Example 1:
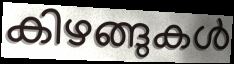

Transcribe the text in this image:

കിഴങ്ങുകൾ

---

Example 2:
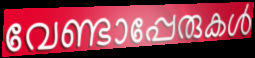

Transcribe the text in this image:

വേണ്ടാപ്പേരുകൾ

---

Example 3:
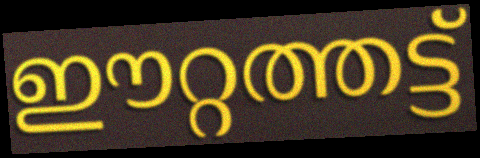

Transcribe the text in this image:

ഈറ്റത്തട്ട്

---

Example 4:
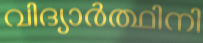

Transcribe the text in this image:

വിദ്യാർത്ഥിനി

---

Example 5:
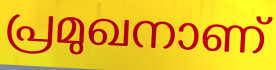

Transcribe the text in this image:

പ്രമുഖനാണ്